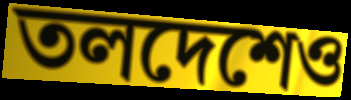
তলদেশেও